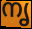
നൃ